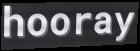
hooray